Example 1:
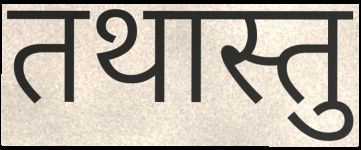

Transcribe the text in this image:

तथास्तु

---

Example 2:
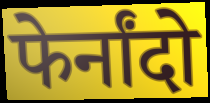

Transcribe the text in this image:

फेर्नांदो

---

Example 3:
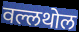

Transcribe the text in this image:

वल्लथोल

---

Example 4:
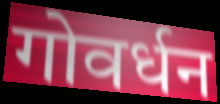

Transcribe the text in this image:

गोवर्धन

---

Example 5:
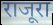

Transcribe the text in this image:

राजूरा